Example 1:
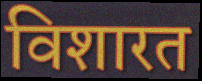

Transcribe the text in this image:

विशारत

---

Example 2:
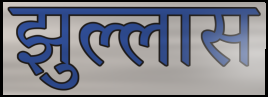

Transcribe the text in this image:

झुल्लास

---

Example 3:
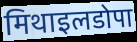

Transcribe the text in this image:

मिथाइलडोपा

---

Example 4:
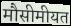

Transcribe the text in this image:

मौसीमीयत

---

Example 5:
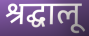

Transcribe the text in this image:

श्रद्घालू